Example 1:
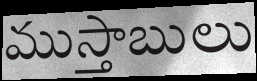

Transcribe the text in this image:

ముస్తాబులు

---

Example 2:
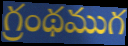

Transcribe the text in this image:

గ్రంథముగ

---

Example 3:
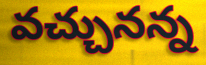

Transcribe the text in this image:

వచ్చునన్న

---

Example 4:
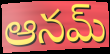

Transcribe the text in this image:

ఆనమ్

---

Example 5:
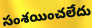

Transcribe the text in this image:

సంశయించలేదు